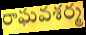
రాఘవశర్మ